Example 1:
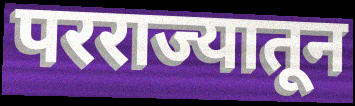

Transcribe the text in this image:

परराज्यातून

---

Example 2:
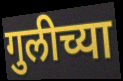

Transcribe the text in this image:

गुलीच्या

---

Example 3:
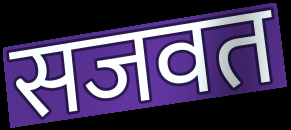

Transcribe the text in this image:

सजवत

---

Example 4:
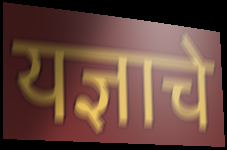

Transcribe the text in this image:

यज्ञाचे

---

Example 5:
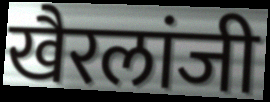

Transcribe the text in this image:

खैरलांजी